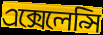
এক্সেলেন্সি